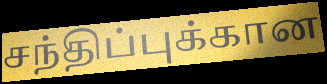
சந்திப்புக்கான